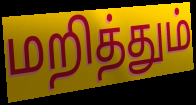
மறித்தும்